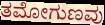
ತಮೋಗುಣವು